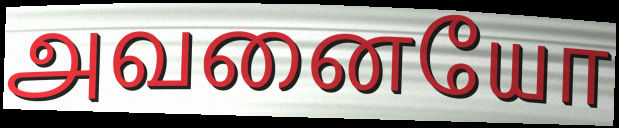
அவனையோ